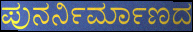
ಪುನರ್ನಿರ್ಮಾಣದ